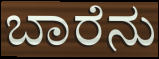
ಬಾರೆನು